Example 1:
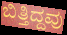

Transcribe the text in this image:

ಬಿತ್ತಿದ್ದವು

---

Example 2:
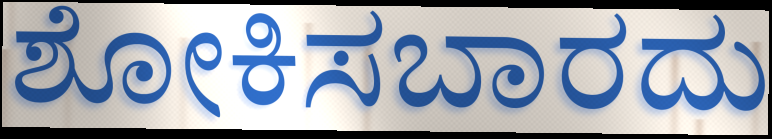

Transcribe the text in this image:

ಶೋಕಿಸಬಾರದು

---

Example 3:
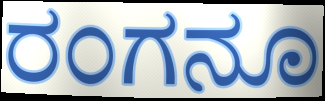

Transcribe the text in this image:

ರಂಗನೂ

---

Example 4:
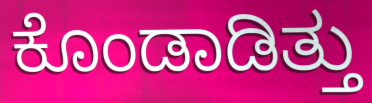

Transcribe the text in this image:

ಕೊಂಡಾಡಿತ್ತು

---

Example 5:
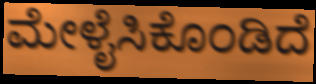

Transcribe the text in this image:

ಮೇಳೈಸಿಕೊಂಡಿದೆ